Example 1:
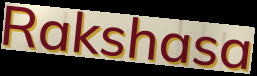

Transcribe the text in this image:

Rakshasa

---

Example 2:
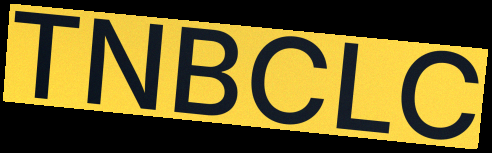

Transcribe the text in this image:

TNBCLC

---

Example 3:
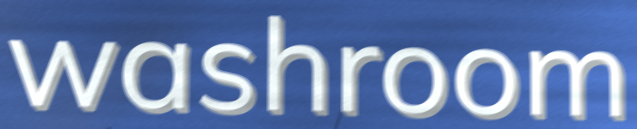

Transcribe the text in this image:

washroom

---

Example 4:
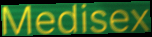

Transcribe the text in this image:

Medisex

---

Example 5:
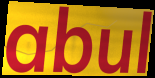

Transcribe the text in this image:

abul